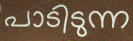
പാടിടുന്ന